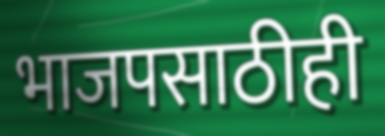
भाजपसाठीही